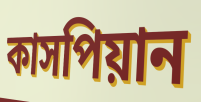
কাসপিয়ান